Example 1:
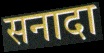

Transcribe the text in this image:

सनादा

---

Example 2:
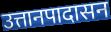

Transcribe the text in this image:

उत्तानपादासन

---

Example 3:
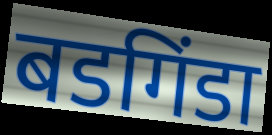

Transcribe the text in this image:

बडगिंडा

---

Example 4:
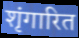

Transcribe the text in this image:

शृंगारित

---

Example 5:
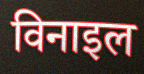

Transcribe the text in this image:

विनाइल